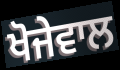
ਖੋਜੇਵਾਲ